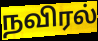
நவிரல்